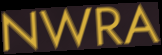
NWRA